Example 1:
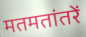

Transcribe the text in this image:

मतमतांतरें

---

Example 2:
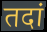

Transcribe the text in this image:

तदां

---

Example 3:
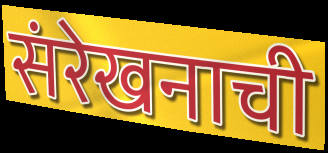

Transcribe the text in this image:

संरेखनाची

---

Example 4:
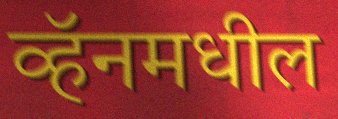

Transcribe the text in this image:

व्हॅनमधील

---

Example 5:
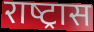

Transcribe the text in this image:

राष्ट्रास